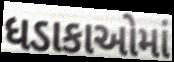
ધડાકાઓમાં